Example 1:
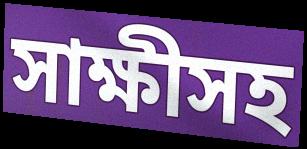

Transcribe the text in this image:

সাক্ষীসহ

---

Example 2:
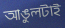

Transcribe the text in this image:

আঙুলটাই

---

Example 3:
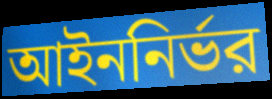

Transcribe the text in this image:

আইননির্ভর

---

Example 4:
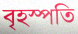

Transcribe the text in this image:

বৃহস্পতি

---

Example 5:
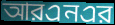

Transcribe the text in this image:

আরএনএর